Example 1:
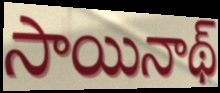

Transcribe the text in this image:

సాయినాథ్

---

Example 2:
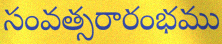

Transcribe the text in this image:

సంవత్సరారంభము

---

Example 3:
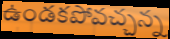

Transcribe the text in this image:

ఉండకపోవచ్చన్న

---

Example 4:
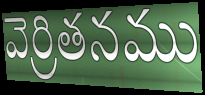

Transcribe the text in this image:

వెర్రితనము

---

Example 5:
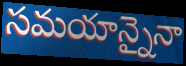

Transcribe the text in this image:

సమయాన్నైనా